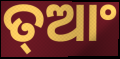
ତ୍ଆଂ